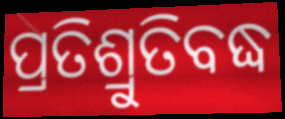
ପ୍ରତିଶ୍ରୁତିବଦ୍ଧ